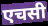
एचसी